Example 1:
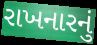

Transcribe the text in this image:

રાખનારનું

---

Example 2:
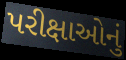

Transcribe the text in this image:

પરીક્ષાઓનું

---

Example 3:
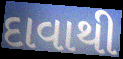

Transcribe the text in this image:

દાવાથી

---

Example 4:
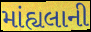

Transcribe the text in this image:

માંહ્યલાની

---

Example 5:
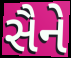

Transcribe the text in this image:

સૈને